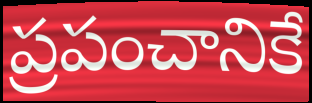
ప్రపంచానికే